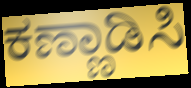
ಕಣ್ಣಾಡಿಸಿ